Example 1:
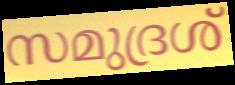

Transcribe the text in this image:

സമുദ്രശ്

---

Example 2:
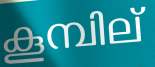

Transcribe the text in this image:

കൂമ്പില്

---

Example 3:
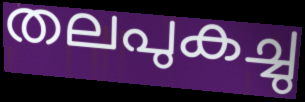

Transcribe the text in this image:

തലപുകച്ചു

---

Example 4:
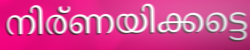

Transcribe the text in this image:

നിര്ണയിക്കട്ടെ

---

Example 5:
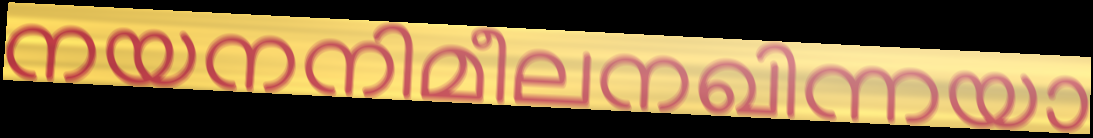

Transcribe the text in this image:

നയനനിമീലനഖിന്നയാ